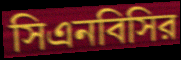
সিএনবিসির